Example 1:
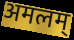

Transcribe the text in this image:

अमलम्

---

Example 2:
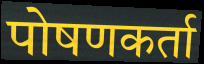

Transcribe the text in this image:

पोषणकर्ता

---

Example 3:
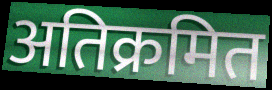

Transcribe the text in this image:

अतिक्रमित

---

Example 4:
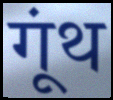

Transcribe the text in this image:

गूंथ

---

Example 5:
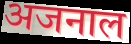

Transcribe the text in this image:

अजनाल